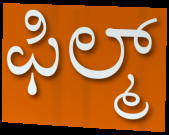
ಫಿಲ್ಮ್